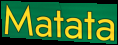
Matata